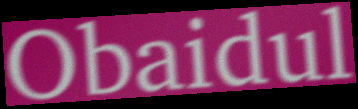
Obaidul